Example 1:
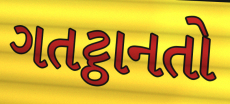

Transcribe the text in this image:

ગતટ્ઠાનતો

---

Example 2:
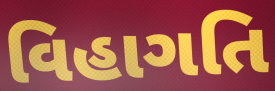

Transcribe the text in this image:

વિહાગતિ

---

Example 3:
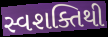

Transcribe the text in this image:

સ્વશક્તિથી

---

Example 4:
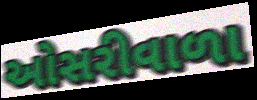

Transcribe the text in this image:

ઓસરીવાળા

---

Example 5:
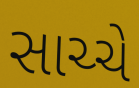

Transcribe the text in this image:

સાચ્ચે